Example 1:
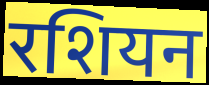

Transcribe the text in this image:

रशियन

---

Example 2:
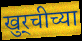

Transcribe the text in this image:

खुर्चीच्या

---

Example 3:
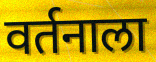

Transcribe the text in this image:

वर्तनाला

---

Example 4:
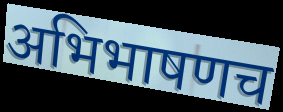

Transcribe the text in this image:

अभिभाषणच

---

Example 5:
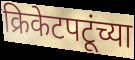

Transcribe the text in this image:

क्रिकेटपटूंच्या